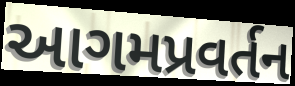
આગમપ્રવર્તન